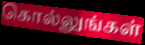
கொல்லுங்கள்